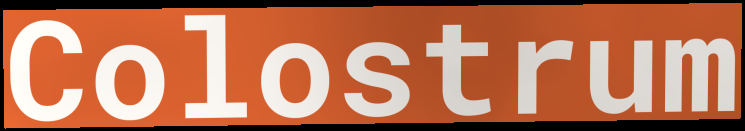
Colostrum